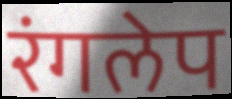
रंगलेप